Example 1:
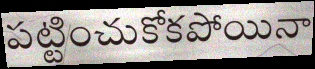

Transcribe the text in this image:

పట్టించుకోకపోయినా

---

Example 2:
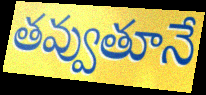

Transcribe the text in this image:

తవ్వుతూనే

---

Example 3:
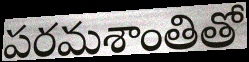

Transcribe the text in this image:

పరమశాంతితో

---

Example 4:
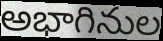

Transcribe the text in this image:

అభాగినుల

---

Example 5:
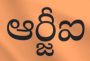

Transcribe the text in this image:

ఆర్జీఐ